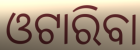
ଓଟାରିବା